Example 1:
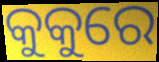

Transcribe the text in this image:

କୁକୁରେ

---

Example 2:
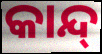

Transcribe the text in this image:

କାନ୍ଦ୍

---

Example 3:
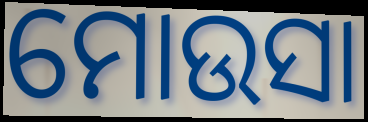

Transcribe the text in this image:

ମୋଉସା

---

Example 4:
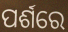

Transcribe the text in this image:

ପର୍ଶରେ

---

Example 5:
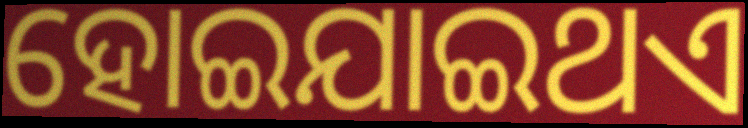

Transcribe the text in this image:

ହୋଇଯାଇଥଏ